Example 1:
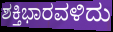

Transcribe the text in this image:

ಶಕ್ತಿಭಾರವಳಿದು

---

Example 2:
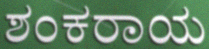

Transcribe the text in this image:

ಶಂಕರಾಯ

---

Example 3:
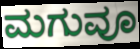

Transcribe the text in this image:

ಮಗುವೂ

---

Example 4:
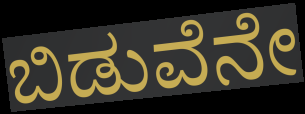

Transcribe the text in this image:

ಬಿಡುವೆನೇ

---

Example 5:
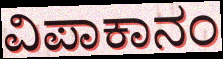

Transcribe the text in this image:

ವಿಪಾಕಾನಂ